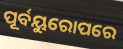
ପୂର୍ବୟୁରୋପରେ